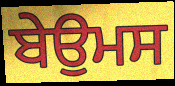
ਬੇਉਮਸ